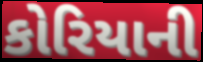
કોરિયાની